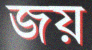
জয়